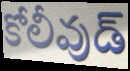
కోలీవుడ్